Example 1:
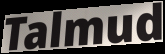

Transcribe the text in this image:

Talmud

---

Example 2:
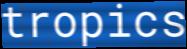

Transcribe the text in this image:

tropics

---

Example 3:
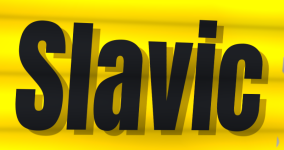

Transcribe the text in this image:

Slavic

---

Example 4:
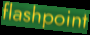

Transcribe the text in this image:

flashpoint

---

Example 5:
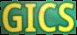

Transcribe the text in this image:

GICS